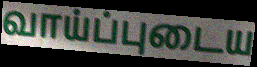
வாய்ப்புடைய